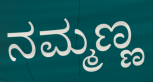
ನಮ್ಮಣ್ಣ